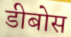
डीबोस